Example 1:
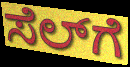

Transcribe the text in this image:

ಸೆಲ್‍ಗೆ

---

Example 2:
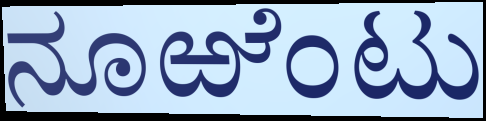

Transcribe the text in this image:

ನೂಱೆಂಟು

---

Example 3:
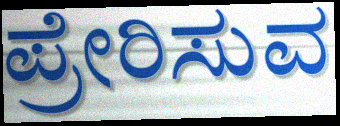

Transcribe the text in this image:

ಪ್ರೇರಿಸುವ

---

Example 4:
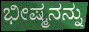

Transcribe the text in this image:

ಭೀಷ್ಮನನ್ನು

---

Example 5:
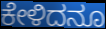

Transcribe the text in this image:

ಕೇಳಿದನೂ